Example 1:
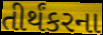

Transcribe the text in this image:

તીર્થંકરના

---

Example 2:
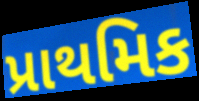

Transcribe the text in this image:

પ્રાથમિક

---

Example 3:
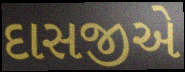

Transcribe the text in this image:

દાસજીએ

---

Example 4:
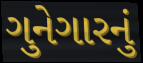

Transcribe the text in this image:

ગુનેગારનું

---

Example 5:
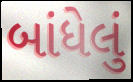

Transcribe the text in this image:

બાંધેલું